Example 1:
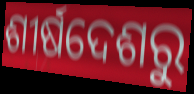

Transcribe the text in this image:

ଶୀର୍ଷଦେଶରୁ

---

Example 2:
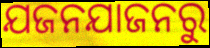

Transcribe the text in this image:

ଯଜନଯାଜନରୁ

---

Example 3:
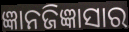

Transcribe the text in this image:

ଜ୍ଞାନଜିଜ୍ଞାସାର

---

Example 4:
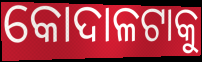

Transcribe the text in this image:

କୋଦାଳଟାକୁ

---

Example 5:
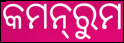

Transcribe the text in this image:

କମନ୍‌ରୁମ